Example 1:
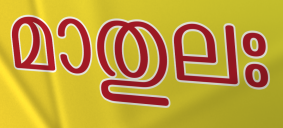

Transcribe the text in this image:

മാതുലഃ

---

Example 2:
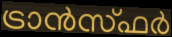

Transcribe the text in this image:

ട്രാൻസ്ഫർ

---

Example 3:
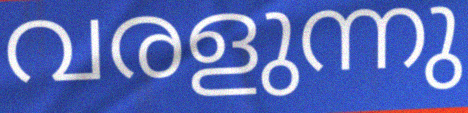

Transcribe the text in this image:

വരളുന്നു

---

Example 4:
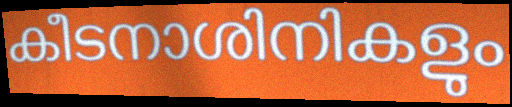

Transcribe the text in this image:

കീടനാശിനികളും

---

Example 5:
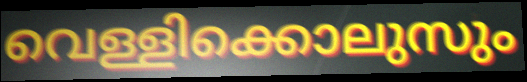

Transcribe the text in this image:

വെള്ളിക്കൊലുസും